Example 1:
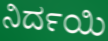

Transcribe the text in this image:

ನಿರ್ದಯಿ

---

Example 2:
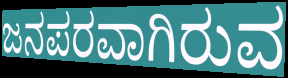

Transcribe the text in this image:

ಜನಪರವಾಗಿರುವ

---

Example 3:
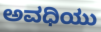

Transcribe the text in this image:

ಅವಧಿಯು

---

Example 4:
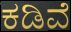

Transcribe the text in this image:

ಕಡಿವೆ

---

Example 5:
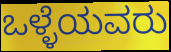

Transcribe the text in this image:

ಒಳ್ಳೆಯವರು